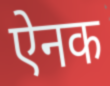
ऐनक